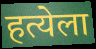
हत्येला